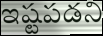
ఇష్టపడని